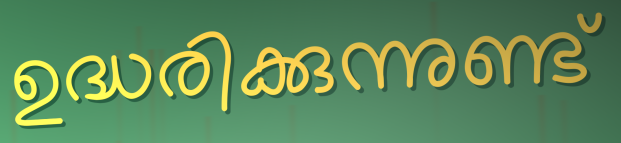
ഉദ്ധരിക്കുന്നുണ്ട്